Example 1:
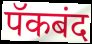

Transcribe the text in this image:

पॅकबंद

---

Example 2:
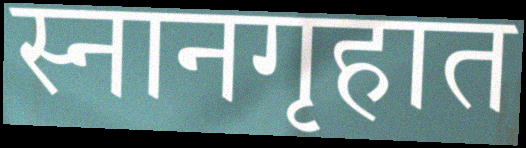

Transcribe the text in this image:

स्नानगृहात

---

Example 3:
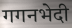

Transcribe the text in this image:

गगनभेदी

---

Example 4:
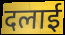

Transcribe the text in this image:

दलाई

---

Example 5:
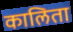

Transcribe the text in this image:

कालिता